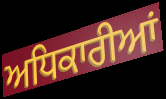
ਅਧਿਕਾਰੀਆਂ